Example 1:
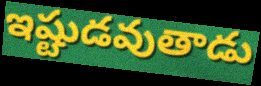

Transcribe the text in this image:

ఇష్టుడవుతాడు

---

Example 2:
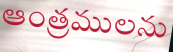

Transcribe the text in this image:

ఆంత్రములను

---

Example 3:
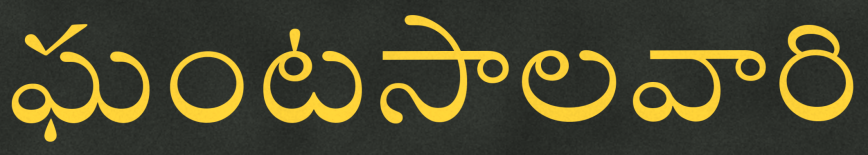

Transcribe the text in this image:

ఘంటసాలవారి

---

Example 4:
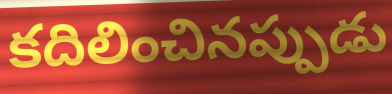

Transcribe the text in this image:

కదిలించినప్పుడు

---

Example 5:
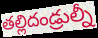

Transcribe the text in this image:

తల్లిదండ్రుల్నీ